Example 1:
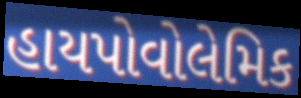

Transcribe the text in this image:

હાયપોવોલેમિક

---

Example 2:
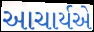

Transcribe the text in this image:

આચાર્યએ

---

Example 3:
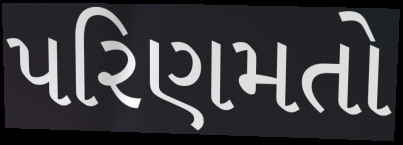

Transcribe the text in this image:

પરિણમતો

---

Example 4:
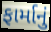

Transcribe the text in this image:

ફાર્માનું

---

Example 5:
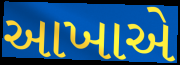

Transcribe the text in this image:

આખાએ